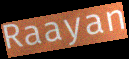
Raayan